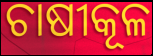
ଚାଷୀକୂଳ